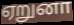
ஏறுனா